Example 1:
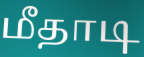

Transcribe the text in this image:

மீதாடி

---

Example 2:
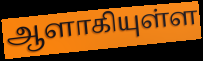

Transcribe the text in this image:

ஆளாகியுள்ள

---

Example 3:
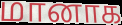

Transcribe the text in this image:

மானாக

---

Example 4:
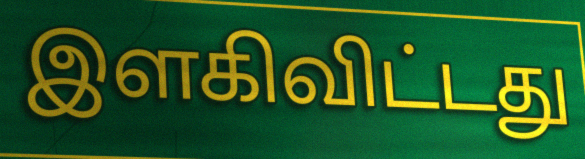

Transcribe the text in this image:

இளகிவிட்டது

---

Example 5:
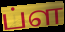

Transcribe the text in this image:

ப்ள